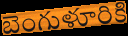
బెంగుళూరికి